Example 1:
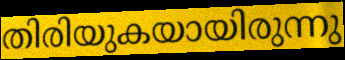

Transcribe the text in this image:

തിരിയുകയായിരുന്നു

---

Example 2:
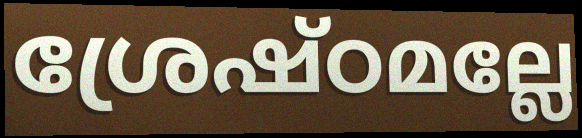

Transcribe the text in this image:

ശ്രേഷ്ഠമല്ലേ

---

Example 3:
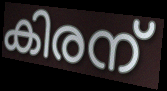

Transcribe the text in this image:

കിരന്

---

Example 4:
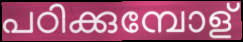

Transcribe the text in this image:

പഠിക്കുമ്പോള്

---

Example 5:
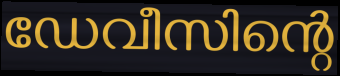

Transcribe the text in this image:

ഡേവീസിന്റെ